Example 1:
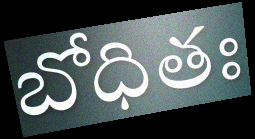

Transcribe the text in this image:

బోధితః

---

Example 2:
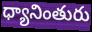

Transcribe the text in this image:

ధ్యానింతురు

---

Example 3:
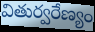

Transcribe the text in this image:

వితుర్వరేణ్యం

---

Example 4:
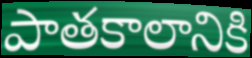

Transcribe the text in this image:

పాతకాలానికి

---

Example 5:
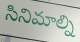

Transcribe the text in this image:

సినిమాల్ని